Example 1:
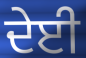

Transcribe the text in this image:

ਦੇਈ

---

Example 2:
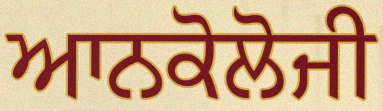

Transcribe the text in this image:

ਆਨਕੋਲੋਜੀ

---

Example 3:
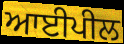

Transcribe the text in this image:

ਆਈਪੀਲ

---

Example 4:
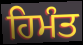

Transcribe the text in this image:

ਹਿਮੰਤ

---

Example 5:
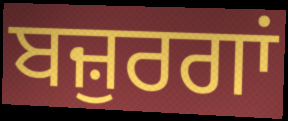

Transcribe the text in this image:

ਬਜ਼ੁਰਗਾਂ